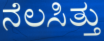
ನೆಲಸಿತ್ತು